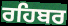
ਰਹਿਬਰ